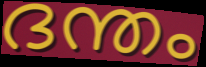
ദന്തം